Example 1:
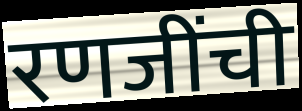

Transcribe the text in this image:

रणजींची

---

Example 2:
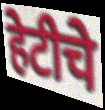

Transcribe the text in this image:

हेटीचे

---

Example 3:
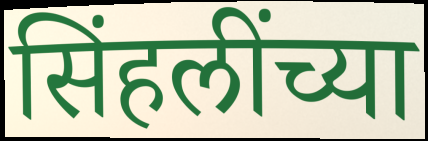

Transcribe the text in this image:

सिंहलींच्या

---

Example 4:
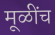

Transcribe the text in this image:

मूळींच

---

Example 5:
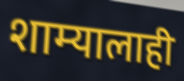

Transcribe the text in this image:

शाम्यालाही